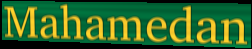
Mahamedan